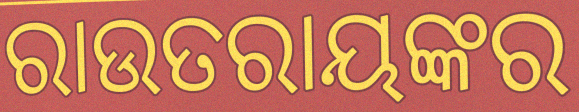
ରାଉତରାୟଙ୍କର